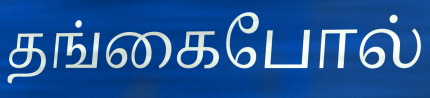
தங்கைபோல்